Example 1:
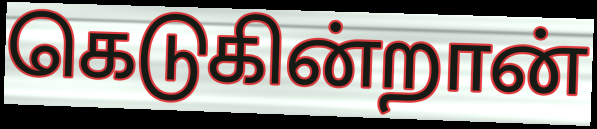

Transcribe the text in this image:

கெடுகின்றான்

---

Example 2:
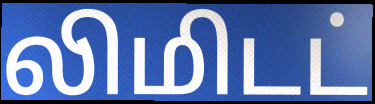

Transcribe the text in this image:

லிமிடட்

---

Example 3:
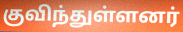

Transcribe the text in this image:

குவிந்துள்ளனர்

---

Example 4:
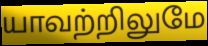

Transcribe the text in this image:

யாவற்றிலுமே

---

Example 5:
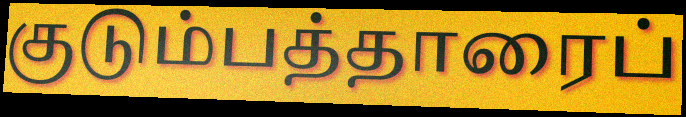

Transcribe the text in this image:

குடும்பத்தாரைப்